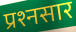
प्रश्‍नसार